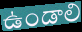
ఉండాలి